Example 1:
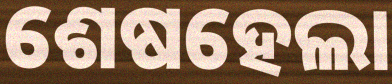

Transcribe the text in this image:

ଶେଷହେଲା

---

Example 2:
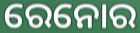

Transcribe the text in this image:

ରେନୋର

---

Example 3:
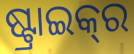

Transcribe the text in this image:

ଷ୍ଟ୍ରାଇକ୍‍ର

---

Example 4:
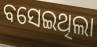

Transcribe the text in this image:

ବସେଇଥିଲା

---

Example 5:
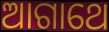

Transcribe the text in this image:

ଆଗାଥେ